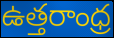
ఉత్తరాంధ్ర